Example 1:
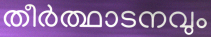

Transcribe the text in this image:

തീർത്ഥാടനവും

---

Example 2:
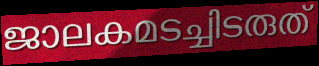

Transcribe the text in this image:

ജാലകമടച്ചിടരുത്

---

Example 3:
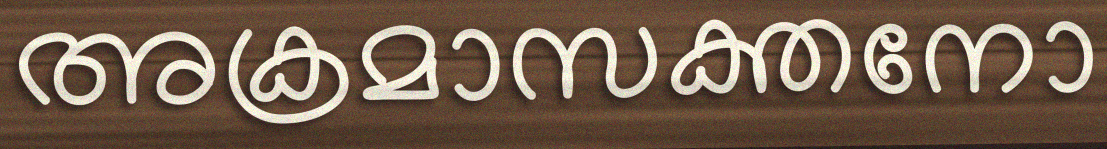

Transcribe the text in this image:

അക്രമാസക്തനോ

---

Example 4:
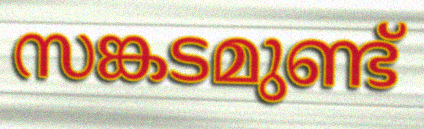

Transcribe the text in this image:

സങ്കടമുണ്ട്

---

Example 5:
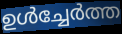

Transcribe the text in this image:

ഉൾച്ചേർത്ത